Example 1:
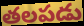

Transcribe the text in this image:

తలపడు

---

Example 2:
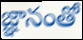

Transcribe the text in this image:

జ్ఞానంతో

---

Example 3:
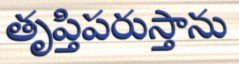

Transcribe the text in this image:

తృప్తిపరుస్తాను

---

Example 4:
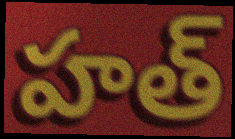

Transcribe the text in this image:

హత్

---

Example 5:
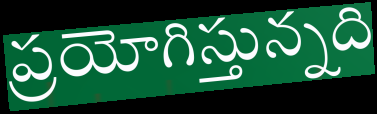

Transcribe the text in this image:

ప్రయోగిస్తున్నది